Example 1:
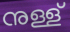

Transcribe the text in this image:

നുള്ള്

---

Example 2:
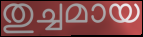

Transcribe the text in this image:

തുച്ചമായ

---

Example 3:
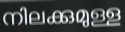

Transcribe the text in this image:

നിലക്കുമുള്ള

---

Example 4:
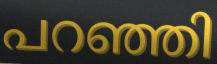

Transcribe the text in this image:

പറഞ്ഞി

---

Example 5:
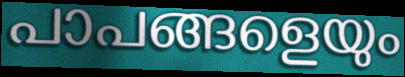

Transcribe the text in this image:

പാപങ്ങളെയും